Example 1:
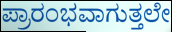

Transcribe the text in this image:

ಪ್ರಾರಂಭವಾಗುತ್ತಲೇ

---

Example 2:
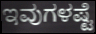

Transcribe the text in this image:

ಇವುಗಳಷ್ಟೆ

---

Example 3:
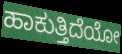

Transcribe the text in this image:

ಹಾಕುತ್ತಿದೆಯೋ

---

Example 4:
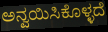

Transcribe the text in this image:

ಅನ್ವಯಿಸಿಕೊಳ್ಳದೆ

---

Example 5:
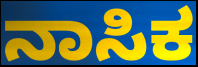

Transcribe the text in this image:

ನಾಸಿಕ